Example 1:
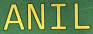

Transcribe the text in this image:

ANIL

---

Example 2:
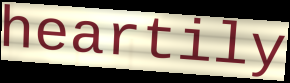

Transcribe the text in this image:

heartily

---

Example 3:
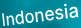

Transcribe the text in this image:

Indonesia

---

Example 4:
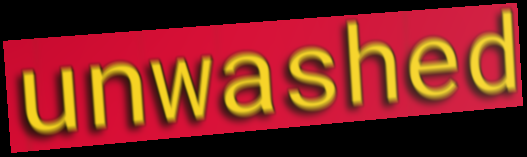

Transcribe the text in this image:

unwashed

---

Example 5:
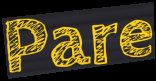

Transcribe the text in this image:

Pare